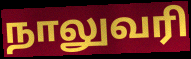
நாலுவரி